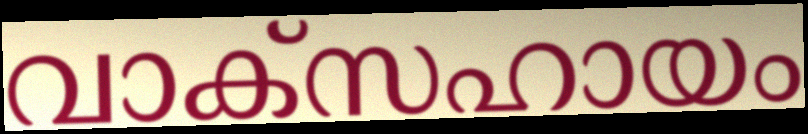
വാക്സഹായം